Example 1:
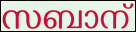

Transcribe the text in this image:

സബാന്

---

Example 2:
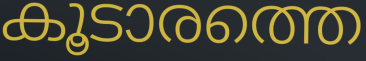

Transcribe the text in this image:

കൂടാരത്തെ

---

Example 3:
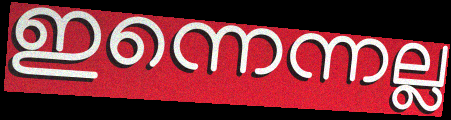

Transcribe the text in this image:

ഇന്നെന്നല്ല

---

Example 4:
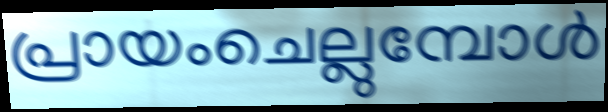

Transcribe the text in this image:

പ്രായംചെല്ലുമ്പോൾ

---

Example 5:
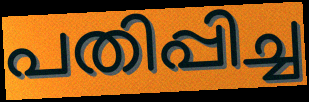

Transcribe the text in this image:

പതിപ്പിച്ച